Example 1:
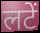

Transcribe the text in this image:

लटें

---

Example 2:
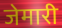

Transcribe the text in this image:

जेमारी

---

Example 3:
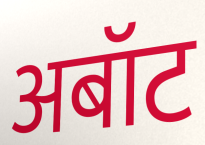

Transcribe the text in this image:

अबॉट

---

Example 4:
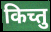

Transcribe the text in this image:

किच्तु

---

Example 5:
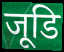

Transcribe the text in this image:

जूडि